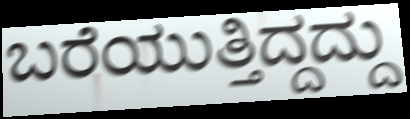
ಬರೆಯುತ್ತಿದ್ದದ್ದು